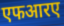
एफआरए